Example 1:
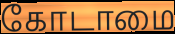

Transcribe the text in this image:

கோடாமை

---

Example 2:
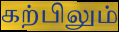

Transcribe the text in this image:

கற்பிலும்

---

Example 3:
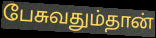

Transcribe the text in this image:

பேசுவதும்தான்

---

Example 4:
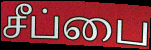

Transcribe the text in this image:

சீப்பை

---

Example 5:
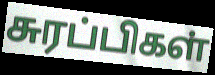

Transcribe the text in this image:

சுரப்பிகள்